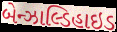
બેન્ઝાલ્ડિહાઇડ